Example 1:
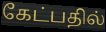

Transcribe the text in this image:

கேட்பதில்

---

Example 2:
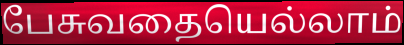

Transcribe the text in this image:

பேசுவதையெல்லாம்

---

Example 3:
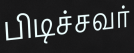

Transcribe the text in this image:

பிடிச்சவர்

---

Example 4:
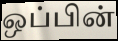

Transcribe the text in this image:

ஒப்பின்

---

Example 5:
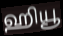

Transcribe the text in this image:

ஹியூ